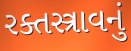
રક્તસ્ત્રાવનું